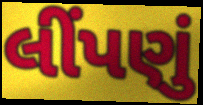
લીંપણું